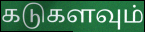
கடுகளவும்